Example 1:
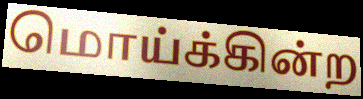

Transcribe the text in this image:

மொய்க்கின்ற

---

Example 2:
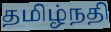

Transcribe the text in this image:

தமிழ்நதி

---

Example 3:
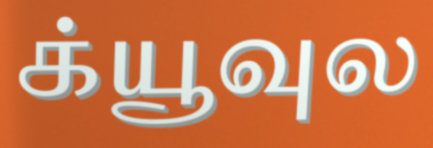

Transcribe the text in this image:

க்யூவுல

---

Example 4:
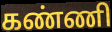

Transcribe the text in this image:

கண்ணி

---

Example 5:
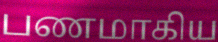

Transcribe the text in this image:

பணமாகிய